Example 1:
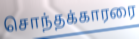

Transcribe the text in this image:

சொந்தக்காரரை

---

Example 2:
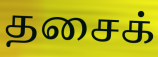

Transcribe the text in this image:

தசைக்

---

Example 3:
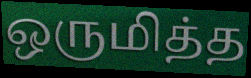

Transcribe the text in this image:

ஒருமித்த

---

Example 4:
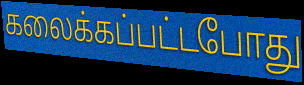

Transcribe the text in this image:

கலைக்கப்பட்டபோது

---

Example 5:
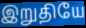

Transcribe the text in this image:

இறுதியே